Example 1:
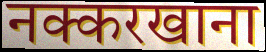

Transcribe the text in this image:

नक्करखाना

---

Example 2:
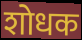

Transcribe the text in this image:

शोधक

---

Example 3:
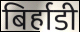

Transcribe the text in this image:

बिर्हाडी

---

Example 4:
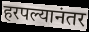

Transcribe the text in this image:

हरपल्यानंतर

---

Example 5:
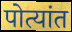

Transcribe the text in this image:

पोत्यांत